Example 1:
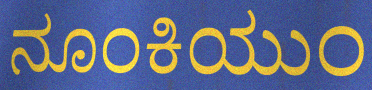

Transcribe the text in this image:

ನೂಂಕಿಯುಂ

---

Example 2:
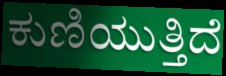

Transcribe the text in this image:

ಕುಣಿಯುತ್ತಿದೆ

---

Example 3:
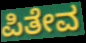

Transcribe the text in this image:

ಪಿತೇವ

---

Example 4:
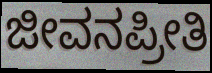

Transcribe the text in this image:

ಜೀವನಪ್ರೀತಿ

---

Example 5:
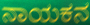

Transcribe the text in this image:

ನಾಯಕನ